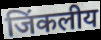
जिंकलीय